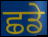
ਛਡੇ